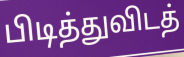
பிடித்துவிடத்